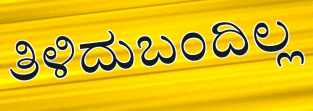
ತಿಳಿದುಬಂದಿಲ್ಲ